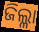
ଜିଲ୍ଳା